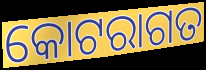
କୋଟରାଗତ